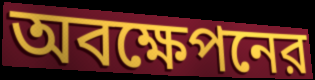
অবক্ষেপনের